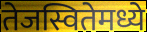
तेजस्वितेमध्ये